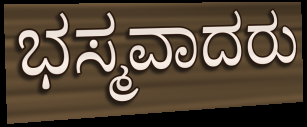
ಭಸ್ಮವಾದರು